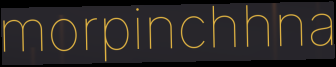
morpinchhna